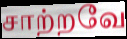
சாற்றவே